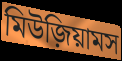
মিউজ়িয়ামস